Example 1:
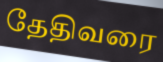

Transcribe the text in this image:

தேதிவரை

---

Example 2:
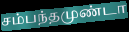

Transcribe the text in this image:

சம்பந்தமுண்டா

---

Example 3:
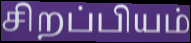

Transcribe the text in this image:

சிறப்பியம்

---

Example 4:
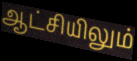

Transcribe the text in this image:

ஆட்சியிலும்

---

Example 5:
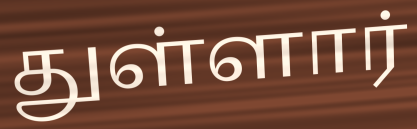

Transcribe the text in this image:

துள்ளார்